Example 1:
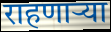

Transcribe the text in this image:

राहणाऱ्या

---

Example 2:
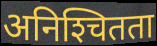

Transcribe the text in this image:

अनिश्‍चितता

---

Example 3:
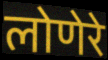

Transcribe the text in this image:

लोणेरे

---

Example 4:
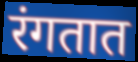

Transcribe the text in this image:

रंगतात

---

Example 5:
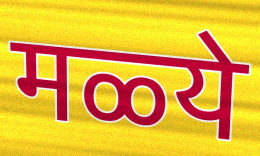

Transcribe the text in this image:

मळ्ये